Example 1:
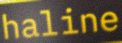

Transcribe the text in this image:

haline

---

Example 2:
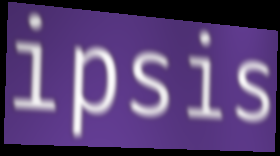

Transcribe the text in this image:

ipsis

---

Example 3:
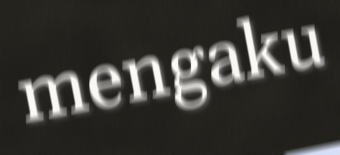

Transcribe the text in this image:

mengaku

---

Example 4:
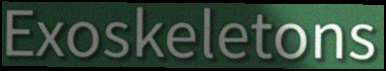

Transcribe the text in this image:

Exoskeletons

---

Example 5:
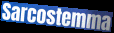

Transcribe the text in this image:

Sarcostemma